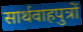
सार्थवाहपुत्रों